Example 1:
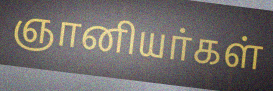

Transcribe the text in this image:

ஞானியர்கள்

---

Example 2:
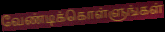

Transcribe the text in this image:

வேண்டிக்கொள்ளுங்கள்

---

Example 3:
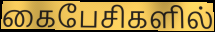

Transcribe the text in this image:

கைபேசிகளில்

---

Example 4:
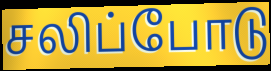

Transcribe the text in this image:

சலிப்போடு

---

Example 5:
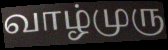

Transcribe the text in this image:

வாழ்முரு